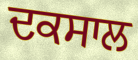
ਦਕਸਾਲ